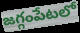
జగ్గంపేటలో